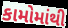
કામોમાંથી